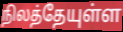
நிலத்தேயுள்ள